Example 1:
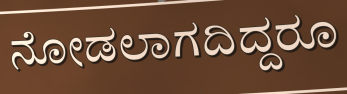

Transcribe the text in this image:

ನೋಡಲಾಗದಿದ್ದರೂ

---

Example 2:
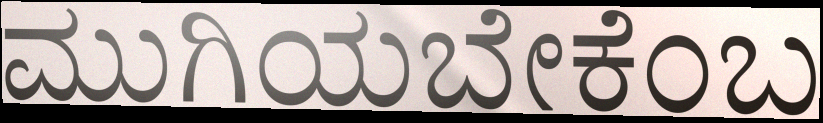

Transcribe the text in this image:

ಮುಗಿಯಬೇಕೆಂಬ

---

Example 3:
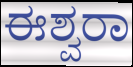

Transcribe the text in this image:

ಈಶ್ವರಾ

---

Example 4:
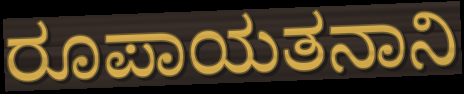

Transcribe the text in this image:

ರೂಪಾಯತನಾನಿ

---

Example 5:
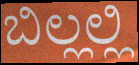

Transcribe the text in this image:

ಬಿಲ್ಲಲ್ಲಿ